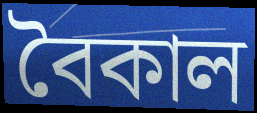
বৈকাল